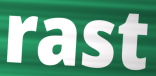
rast